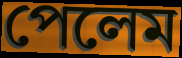
পেলেম